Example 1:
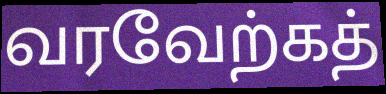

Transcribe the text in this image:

வரவேற்கத்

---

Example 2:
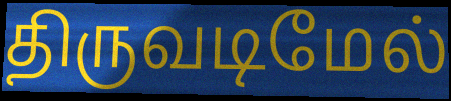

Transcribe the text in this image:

திருவடிமேல்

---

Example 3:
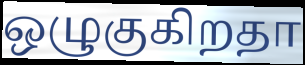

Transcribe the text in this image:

ஒழுகுகிறதா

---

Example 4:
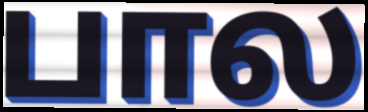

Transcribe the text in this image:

பால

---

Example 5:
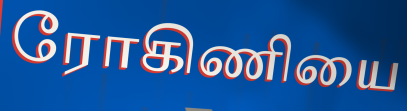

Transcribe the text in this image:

ரோகிணியை